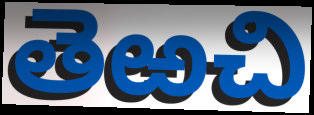
తెఱచి